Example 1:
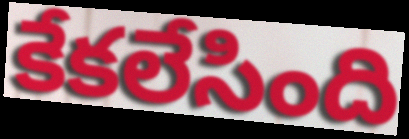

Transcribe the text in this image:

కేకలేసింది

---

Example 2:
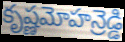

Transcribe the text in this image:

కృష్ణమోహన్రెడ్డి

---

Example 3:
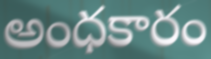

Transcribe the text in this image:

అంధకారం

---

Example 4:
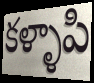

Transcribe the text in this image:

కళ్ళాపి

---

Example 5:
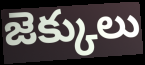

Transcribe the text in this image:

జెక్కులు